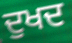
ਦੁਖਦ